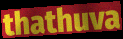
thathuva